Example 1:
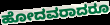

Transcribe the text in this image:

ಹೋದವರಾದರೂ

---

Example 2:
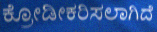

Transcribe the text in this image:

ಕ್ರೋಡೀಕರಿಸಲಾಗಿದೆ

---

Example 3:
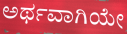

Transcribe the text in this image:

ಅರ್ಥವಾಗಿಯೇ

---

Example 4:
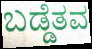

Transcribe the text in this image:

ಬಡ್ಡೆತವ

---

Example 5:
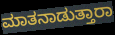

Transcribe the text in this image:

ಮಾತನಾಡುತ್ತಾರಾ